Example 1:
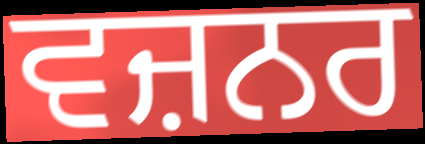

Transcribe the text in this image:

ਵਜ਼ਨਰ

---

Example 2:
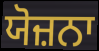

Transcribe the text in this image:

ਯੋਜ਼ਨਾ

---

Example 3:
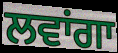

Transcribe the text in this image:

ਲਵਾਂਗਾ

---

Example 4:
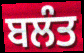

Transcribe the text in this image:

ਬਲੰਤ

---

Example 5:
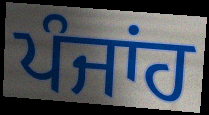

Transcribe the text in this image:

ਪੰਜਾਂਹ